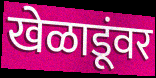
खेळाडूंवर